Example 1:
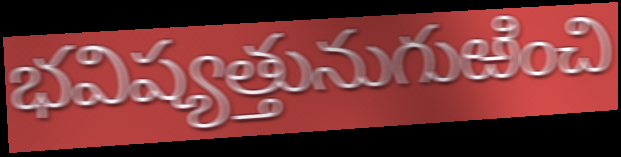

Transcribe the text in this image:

భవిష్యత్తునుగుఱించి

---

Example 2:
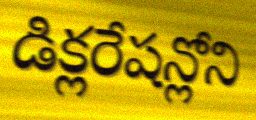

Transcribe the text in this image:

డిక్లరేషన్లోని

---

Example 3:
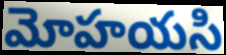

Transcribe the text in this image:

మోహయసి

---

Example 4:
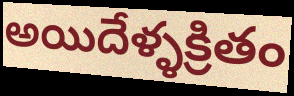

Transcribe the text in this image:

అయిదేళ్ళక్రితం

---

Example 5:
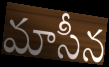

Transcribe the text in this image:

మాసీన